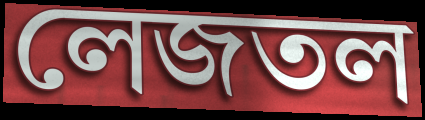
লেজতল